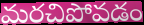
మరచిపోవడం